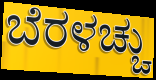
ಬೆರಳಚ್ಚು